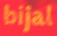
bijal